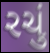
રચું